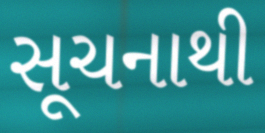
સૂચનાથી